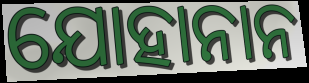
ଯୋହାନାନ